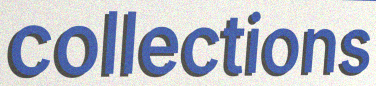
collections